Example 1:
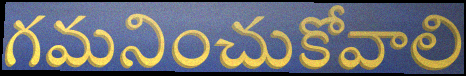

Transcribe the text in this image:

గమనించుకోవాలి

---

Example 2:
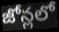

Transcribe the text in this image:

జోన్లలో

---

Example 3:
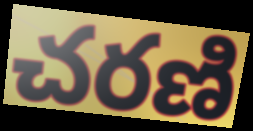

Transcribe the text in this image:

చరణి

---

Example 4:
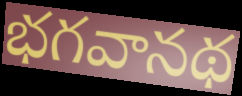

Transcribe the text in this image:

భగవానథ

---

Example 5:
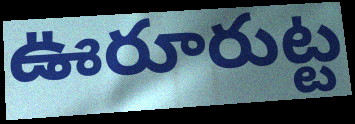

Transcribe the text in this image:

ఊరూరుట్ట